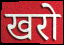
खरो